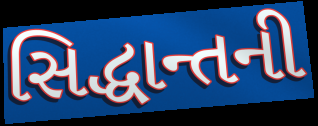
સિદ્ધાન્તની